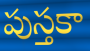
పుస్తకా